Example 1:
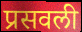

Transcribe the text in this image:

प्रसवली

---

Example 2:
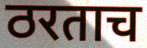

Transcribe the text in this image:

ठरताच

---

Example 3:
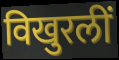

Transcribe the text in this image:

विखुरलीं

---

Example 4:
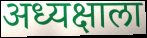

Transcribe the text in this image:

अध्यक्षाला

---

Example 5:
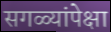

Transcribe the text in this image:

सगळ्यांपेक्षा